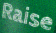
Raise